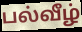
பல்வீழ்